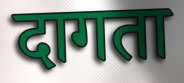
दागता